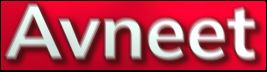
Avneet